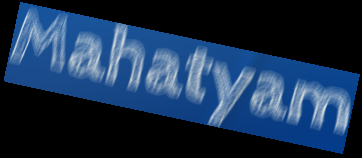
Mahatyam